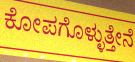
ಕೋಪಗೊಳ್ಳುತ್ತೇನೆ